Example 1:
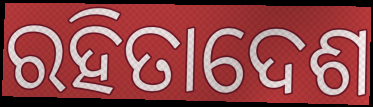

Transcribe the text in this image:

ରହିତାଦେଶ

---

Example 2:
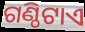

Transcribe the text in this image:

ଗଣ୍ଠିଟାଏ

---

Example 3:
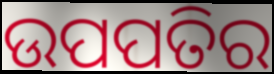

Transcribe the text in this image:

ଉପପତିର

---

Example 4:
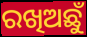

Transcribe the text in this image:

ରଖିଅଛୁଁ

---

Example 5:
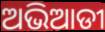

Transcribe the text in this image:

ଅଭିଆଡୀ